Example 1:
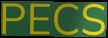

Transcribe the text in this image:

PECS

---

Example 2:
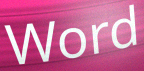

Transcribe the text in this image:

Word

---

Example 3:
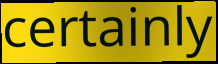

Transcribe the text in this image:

certainly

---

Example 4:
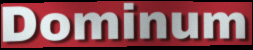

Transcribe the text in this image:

Dominum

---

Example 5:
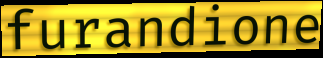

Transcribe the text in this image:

furandione